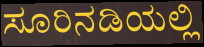
ಸೂರಿನಡಿಯಲ್ಲಿ